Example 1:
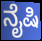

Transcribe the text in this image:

ನೈಷಿ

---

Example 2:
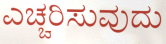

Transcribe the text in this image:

ಎಚ್ಚರಿಸುವುದು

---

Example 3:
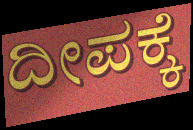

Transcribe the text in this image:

ದೀಪಕ್ಕೆ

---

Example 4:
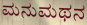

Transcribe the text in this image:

ಮನುಮಥನ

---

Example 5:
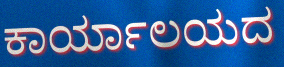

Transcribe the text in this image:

ಕಾರ್ಯಾಲಯದ